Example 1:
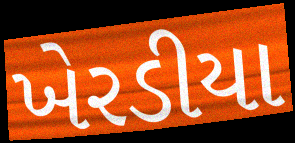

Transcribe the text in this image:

ખેરડીયા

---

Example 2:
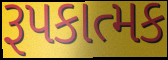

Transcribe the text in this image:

રૂપકાત્મક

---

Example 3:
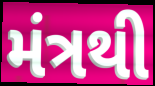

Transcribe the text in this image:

મંત્રથી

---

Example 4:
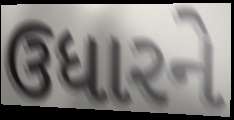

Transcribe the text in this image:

ઉધારને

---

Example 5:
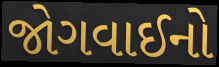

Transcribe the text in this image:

જોગવાઈનો